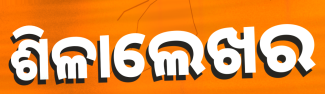
ଶିଳାଲେଖର